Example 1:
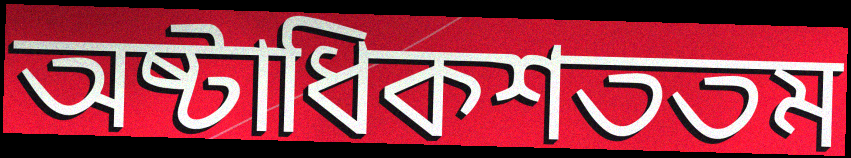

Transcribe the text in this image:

অষ্টাধিকশততম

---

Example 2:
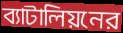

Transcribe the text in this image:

ব্যাটালিয়নের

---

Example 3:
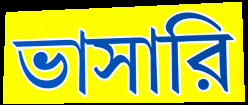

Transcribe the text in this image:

ভাসারি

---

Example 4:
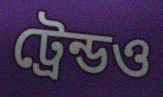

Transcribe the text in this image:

ট্রেন্ডও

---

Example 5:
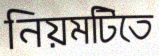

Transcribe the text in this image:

নিয়মটিতে